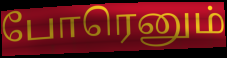
போரெனும்